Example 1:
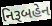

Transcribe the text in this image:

નિરૂબહેન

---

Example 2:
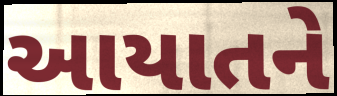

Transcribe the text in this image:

આયાતને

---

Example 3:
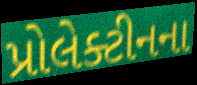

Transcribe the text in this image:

પ્રોલેક્ટીનના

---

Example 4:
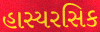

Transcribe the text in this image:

હાસ્યરસિક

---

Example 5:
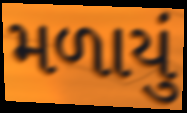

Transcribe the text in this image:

મળાયું